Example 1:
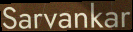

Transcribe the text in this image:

Sarvankar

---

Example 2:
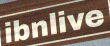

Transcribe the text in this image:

ibnlive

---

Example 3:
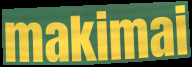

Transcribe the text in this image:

makimai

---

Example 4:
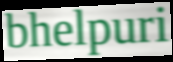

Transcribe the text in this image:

bhelpuri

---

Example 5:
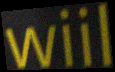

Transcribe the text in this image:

wiil